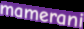
mamerani